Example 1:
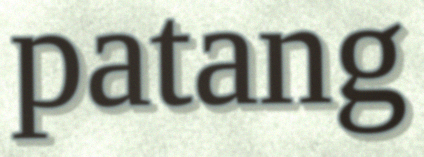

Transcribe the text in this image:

patang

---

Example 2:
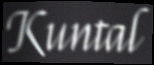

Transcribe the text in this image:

Kuntal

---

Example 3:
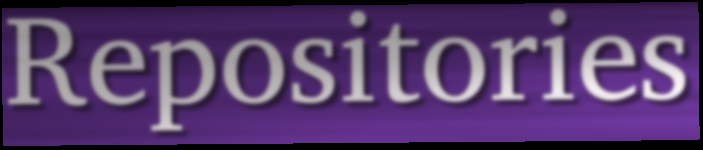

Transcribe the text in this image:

Repositories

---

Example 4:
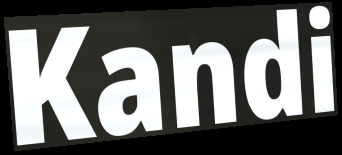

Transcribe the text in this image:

Kandi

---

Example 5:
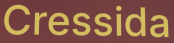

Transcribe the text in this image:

Cressida